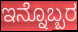
ಇನ್ನೊಬ್ಬರ